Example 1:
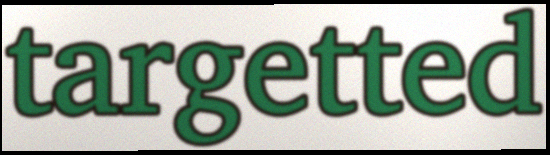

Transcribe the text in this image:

targetted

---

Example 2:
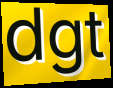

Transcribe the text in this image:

dgt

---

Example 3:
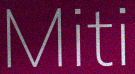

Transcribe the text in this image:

Miti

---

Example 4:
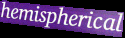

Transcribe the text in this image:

hemispherical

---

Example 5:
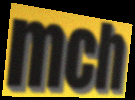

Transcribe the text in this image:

mch